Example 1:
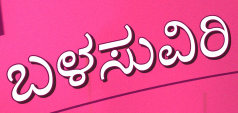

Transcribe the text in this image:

ಬಳಸುವಿರಿ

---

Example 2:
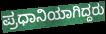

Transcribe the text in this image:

ಪ್ರಧಾನಿಯಾಗಿದ್ದರು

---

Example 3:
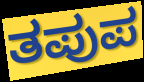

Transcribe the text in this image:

ತಪುಪ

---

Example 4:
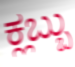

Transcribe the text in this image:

ಕ್ಲಬ್ಬು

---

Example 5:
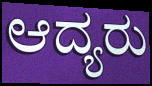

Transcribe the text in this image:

ಆದ್ಯರು